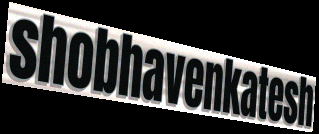
shobhavenkatesh